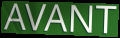
AVANT